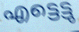
എട്ടെട്ടു